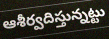
ఆశీర్వదిస్తున్నట్టు